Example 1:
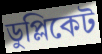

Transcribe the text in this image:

ডুপ্লিকেট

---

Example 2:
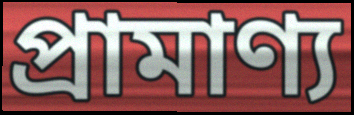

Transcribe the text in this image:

প্ৰামাণ্য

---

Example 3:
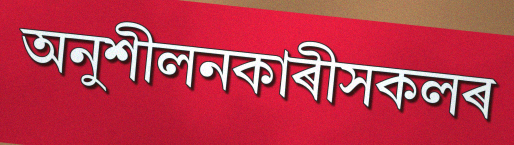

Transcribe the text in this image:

অনুশীলনকাৰীসকলৰ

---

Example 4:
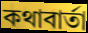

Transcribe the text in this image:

কথাবাৰ্তা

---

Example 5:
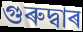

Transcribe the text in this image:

গুৰুদ্বাৰ